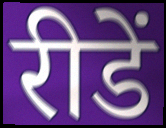
रीडें